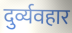
दुर्व्यवहार